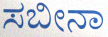
ಸಬೀನಾ